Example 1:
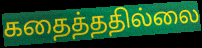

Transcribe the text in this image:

கதைத்ததில்லை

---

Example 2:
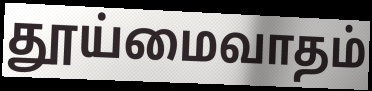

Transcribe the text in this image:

தூய்மைவாதம்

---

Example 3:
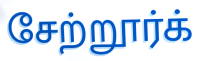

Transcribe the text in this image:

சேற்றூர்க்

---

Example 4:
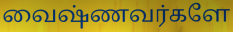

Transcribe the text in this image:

வைஷ்ணவர்களே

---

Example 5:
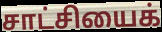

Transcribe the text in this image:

சாட்சியைக்